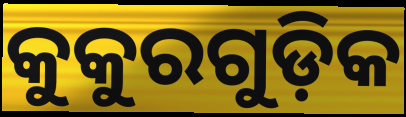
କୁକୁରଗୁଡ଼ିକ